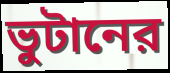
ভুটানের